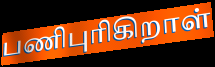
பணிபுரிகிறாள்